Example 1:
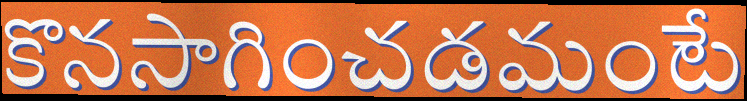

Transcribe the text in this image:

కొనసాగించడమంటే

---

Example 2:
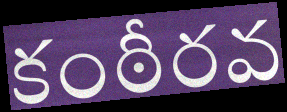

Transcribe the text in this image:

కంఠీరవ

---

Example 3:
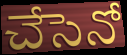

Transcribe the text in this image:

చేసెనో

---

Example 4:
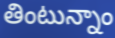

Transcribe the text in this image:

తింటున్నాం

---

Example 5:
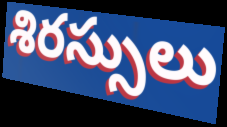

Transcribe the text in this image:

శిరస్సులు